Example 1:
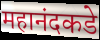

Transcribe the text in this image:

महानंदकडे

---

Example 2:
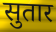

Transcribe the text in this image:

सुतार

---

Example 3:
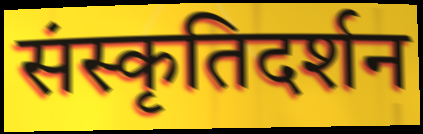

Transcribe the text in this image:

संस्कृतिदर्शन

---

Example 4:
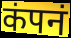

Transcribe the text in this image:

कंपनं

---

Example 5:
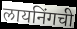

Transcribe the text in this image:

लायनिंगची